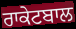
ਰਾਕੇਟਬਾਲ